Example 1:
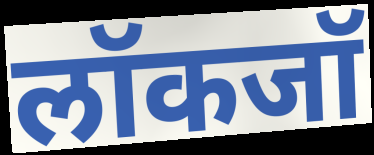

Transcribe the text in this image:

लॉकजॉ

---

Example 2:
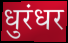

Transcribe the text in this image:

धुरंधर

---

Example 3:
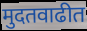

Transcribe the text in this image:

मुदतवाढीत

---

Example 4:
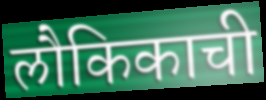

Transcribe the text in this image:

लौकिकाची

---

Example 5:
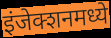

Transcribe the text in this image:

इंजेक्शनमध्ये